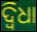
ଦ୍ୱିଧା